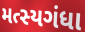
મત્સ્યગંધા